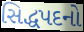
સિદ્ધપદનો